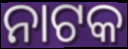
ନାଟକ